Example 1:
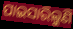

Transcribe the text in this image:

ପାଇସାରିଲୁଣି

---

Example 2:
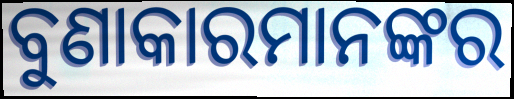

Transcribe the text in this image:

ବୁଣାକାରମାନଙ୍କର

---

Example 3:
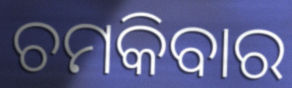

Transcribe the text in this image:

ଚମକିବାର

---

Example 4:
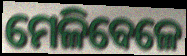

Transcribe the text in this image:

ମେଳିବେଳେ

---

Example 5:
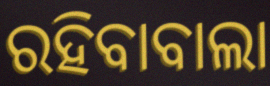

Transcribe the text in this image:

ରହିବାବାଲା